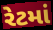
રેટમાં